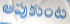
ఆపుకుంట